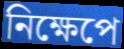
নিক্ষেপে